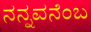
ನನ್ನವನೆಂಬ